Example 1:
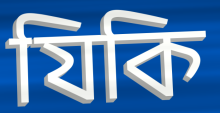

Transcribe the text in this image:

যিকি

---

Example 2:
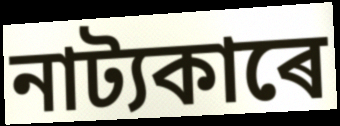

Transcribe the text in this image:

নাট্যকাৰে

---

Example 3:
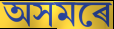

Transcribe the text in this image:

অসমৰে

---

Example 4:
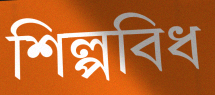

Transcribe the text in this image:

শিল্পবিধ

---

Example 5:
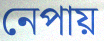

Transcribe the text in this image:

নেপায়